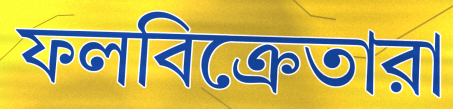
ফলবিক্রেতারা